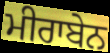
ਮੀਰਾਬੇਨ